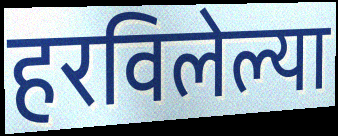
हरविलेल्या